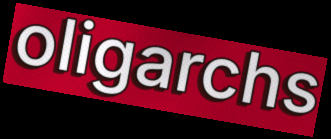
oligarchs